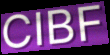
CIBF